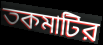
তকমাটির